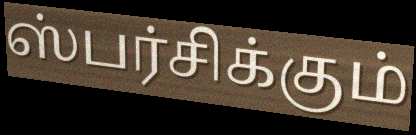
ஸ்பர்சிக்கும்